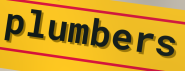
plumbers